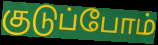
குடுப்போம்